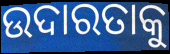
ଉଦାରତାକୁ